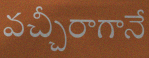
వచ్చీరాగానే